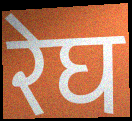
रेघ